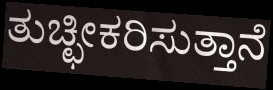
ತುಚ್ಛೀಕರಿಸುತ್ತಾನೆ